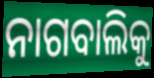
ନାଗବାଲିକୁ